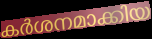
കർശനമാക്കിയ